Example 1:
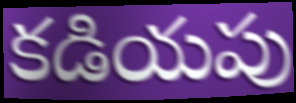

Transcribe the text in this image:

కడియపు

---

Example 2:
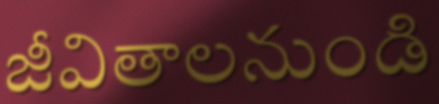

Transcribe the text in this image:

జీవితాలనుండి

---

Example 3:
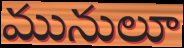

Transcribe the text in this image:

మునులూ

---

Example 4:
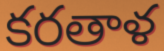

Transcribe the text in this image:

కరతాళ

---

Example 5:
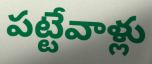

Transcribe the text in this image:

పట్టేవాళ్లు